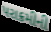
પરાક્રમીની